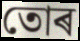
তোৰ